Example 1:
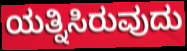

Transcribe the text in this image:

ಯತ್ನಿಸಿರುವುದು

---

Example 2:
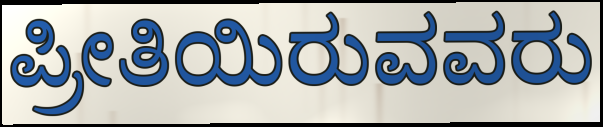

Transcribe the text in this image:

ಪ್ರೀತಿಯಿರುವವರು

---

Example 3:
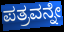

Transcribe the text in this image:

ಪತ್ರವನ್ನೇ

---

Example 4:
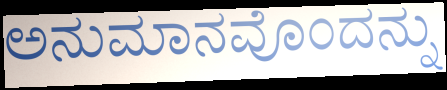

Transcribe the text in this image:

ಅನುಮಾನವೊಂದನ್ನು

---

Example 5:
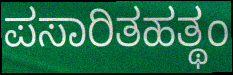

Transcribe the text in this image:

ಪಸಾರಿತಹತ್ಥಂ